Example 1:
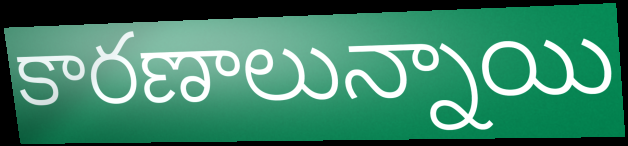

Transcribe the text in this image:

కారణాలున్నాయి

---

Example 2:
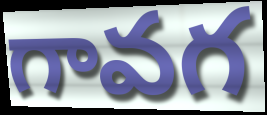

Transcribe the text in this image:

గావగ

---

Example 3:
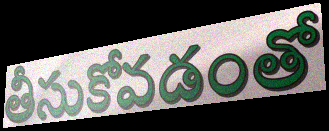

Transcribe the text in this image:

తీసుకోవడంతో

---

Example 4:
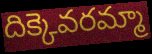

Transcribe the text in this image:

దిక్కెవరమ్మా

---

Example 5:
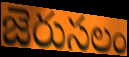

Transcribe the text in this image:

జెరుసలం